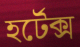
হর্টেক্স